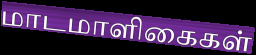
மாடமாளிகைகள்